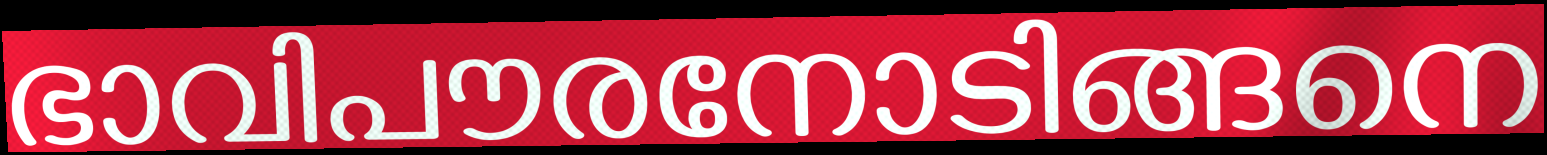
ഭാവിപൗരനോടിങ്ങനെ